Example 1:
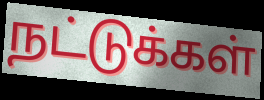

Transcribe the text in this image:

நட்டுக்கள்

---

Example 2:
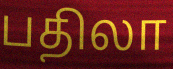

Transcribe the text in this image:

பதிலா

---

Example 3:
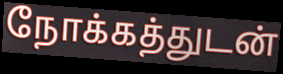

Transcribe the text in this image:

நோக்கத்துடன்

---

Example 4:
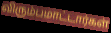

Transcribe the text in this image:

விரும்பமாட்டார்கள்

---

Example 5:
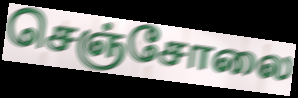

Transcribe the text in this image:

செஞ்சோலை